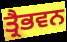
ਤ੍ਰੈਭਵਨ